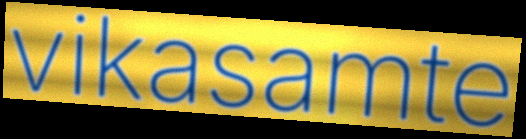
vikasamte